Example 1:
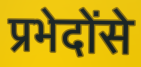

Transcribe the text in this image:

प्रभेदोंसे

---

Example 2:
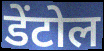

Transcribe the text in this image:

डेंटोल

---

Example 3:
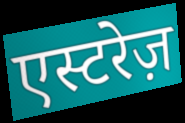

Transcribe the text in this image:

एस्टरेज़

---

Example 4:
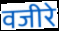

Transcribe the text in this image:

वजीरे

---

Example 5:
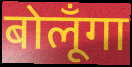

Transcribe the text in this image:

बोलूँगा